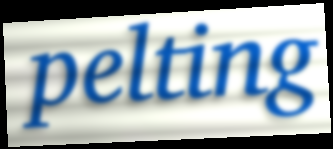
pelting